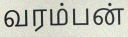
வரம்பன்